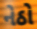
નેઠો